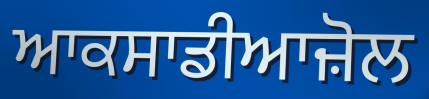
ਆਕਸਾਡੀਆਜ਼ੋਲ